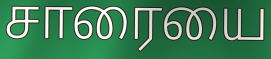
சாரையை